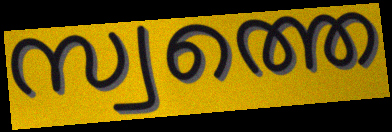
സ്വത്തെ